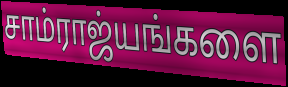
சாம்ராஜ்யங்களை